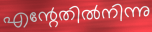
എന്റേതിൽനിന്നു